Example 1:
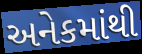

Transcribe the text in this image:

અનેકમાંથી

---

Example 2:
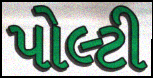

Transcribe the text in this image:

પોલ્ટી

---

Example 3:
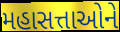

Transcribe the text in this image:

મહાસત્તાઓને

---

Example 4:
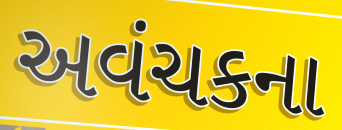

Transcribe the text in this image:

અવંચકના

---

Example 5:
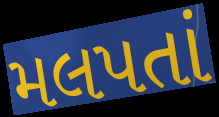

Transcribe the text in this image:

મલપતાં